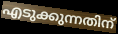
എടുക്കുന്നതിന്